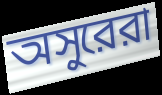
অসুরেরা